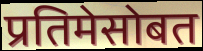
प्रतिमेसोबत